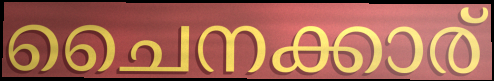
ചൈനക്കാര്